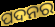
ପଦନର